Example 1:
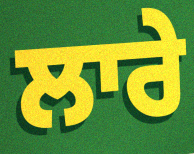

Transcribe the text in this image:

ਲਾਰੇ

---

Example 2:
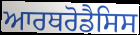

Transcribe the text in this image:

ਆਰਥਰੋਡੈਸਿਸ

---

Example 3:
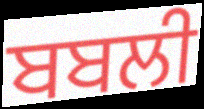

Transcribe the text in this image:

ਬਬਲੀ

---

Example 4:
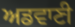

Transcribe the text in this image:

ਅਡਵਾਣੀ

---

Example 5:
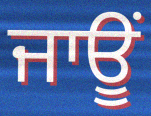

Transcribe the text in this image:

ਜਾਊਂ